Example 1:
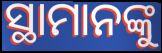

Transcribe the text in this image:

ସ୍ଥାମାନଙ୍କୁ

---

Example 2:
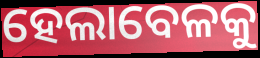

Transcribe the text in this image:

ହେଲାବେଳକୁ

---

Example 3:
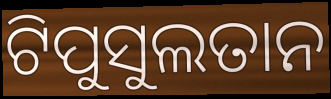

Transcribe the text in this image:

ଟିପୁସୁଲତାନ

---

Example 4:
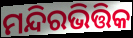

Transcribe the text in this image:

ମନ୍ଦିରଭିତ୍ତିକ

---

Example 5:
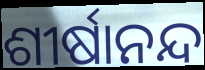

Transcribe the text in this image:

ଶୀର୍ଷାନନ୍ଦ